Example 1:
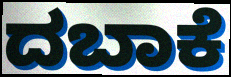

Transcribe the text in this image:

ದಬಾಕೆ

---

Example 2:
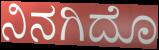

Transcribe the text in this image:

ನಿನಗಿದೊ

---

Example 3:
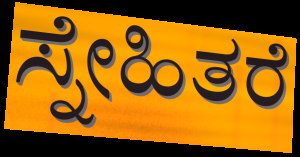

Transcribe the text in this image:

ಸ್ನೇಹಿತರೆ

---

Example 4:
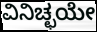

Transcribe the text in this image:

ವಿನಿಚ್ಛಯೇ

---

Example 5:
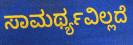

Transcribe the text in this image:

ಸಾಮರ್ಥ್ಯವಿಲ್ಲದೆ